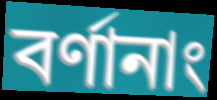
বর্ণানাং